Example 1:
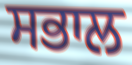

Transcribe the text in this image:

ਸਭਾਲ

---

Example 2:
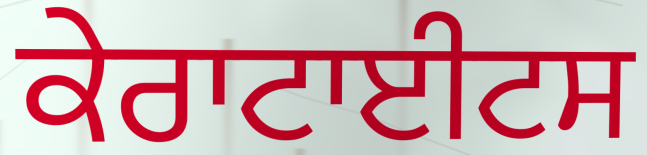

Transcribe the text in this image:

ਕੇਰਾਟਾਈਟਸ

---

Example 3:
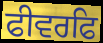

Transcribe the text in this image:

ਫੀਵਰਫਿ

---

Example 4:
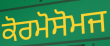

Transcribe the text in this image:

ਕੋਰਮੋਸੋਮਜ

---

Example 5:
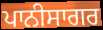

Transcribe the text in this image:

ਪਾਨੀਸਾਗਰ